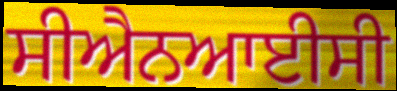
ਸੀਐਨਆਈਸੀ